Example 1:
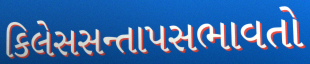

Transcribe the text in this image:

કિલેસસન્તાપસભાવતો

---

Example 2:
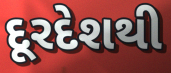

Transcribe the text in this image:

દૂરદેશથી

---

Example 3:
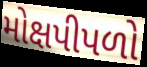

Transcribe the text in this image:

મોક્ષપીપળો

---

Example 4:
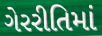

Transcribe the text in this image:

ગેરરીતિમાં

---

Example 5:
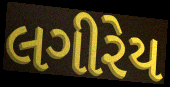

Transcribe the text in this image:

લગીરેય